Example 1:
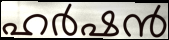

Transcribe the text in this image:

ഹർഷൻ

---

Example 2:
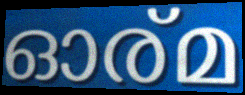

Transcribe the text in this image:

ഓര്മ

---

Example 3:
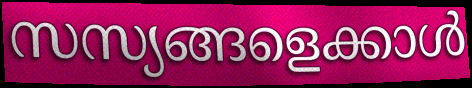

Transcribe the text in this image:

സസ്യങ്ങളെക്കാൾ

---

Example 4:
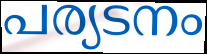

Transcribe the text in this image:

പര്യടനം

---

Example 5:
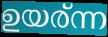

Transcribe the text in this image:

ഉയര്ന്ന